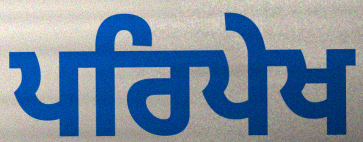
ਪਰਿਪੇਖ